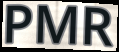
PMR